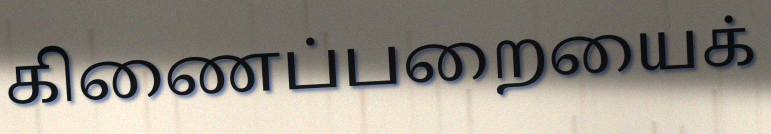
கிணைப்பறையைக்